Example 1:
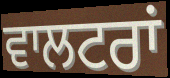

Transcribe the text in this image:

ਵਾਲਟਰਾਂ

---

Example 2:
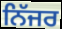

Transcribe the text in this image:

ਨਿੱਜਰ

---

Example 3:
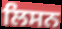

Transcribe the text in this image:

ਲਿਸਨ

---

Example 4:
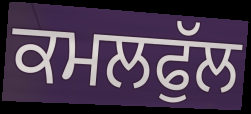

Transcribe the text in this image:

ਕਮਲਫੁੱਲ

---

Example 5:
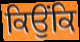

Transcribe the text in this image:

ਕਿਉਂਕਿ